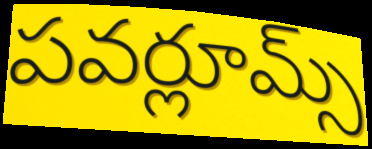
పవర్లూమ్స్